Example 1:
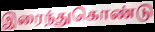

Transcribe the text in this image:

இரைந்துகொண்டு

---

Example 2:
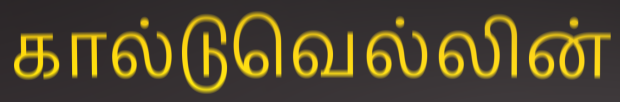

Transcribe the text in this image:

கால்டுவெல்லின்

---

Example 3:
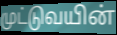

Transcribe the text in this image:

முட்டுவயின்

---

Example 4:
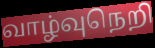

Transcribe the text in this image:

வாழ்வுநெறி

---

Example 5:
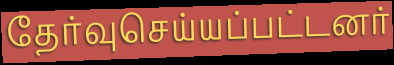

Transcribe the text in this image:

தேர்வுசெய்யப்பட்டனர்